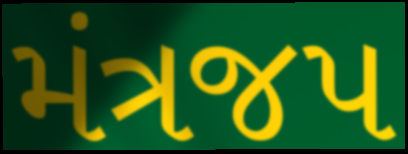
મંત્રજપ